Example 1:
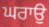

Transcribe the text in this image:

ਘਰਾਉ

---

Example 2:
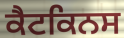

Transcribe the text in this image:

ਕੈਟਕਿਨਸ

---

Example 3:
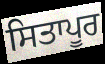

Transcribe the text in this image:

ਸਿਤਾਪੂਰ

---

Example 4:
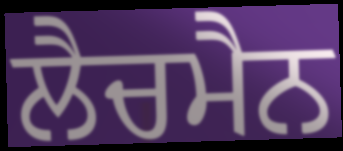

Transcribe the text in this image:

ਲੈਚਮੈਨ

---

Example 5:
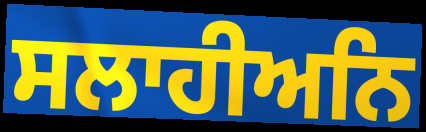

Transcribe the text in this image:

ਸਲਾਹੀਅਨਿ